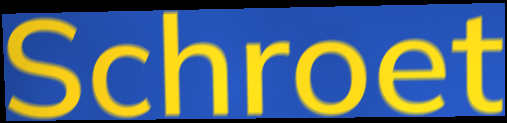
Schroet